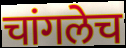
चांगलेच